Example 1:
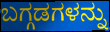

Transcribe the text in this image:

ಬಗ್ಗಡಗಳನ್ನು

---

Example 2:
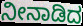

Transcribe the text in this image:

ನೀನಾಡಿದ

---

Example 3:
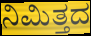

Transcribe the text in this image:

ನಿಮಿತ್ತದ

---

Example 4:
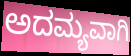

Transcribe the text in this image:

ಅದಮ್ಯವಾಗಿ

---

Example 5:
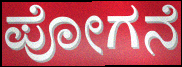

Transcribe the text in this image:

ಪೋಗನೆ